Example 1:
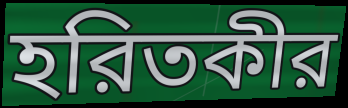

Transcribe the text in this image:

হরিতকীর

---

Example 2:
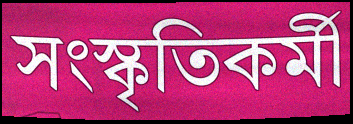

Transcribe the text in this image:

সংস্কৃতিকর্মী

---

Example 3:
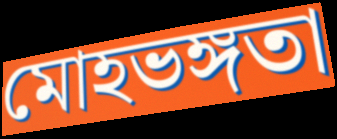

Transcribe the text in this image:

মোহভঙ্গতা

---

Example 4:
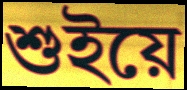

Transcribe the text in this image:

শুইয়ে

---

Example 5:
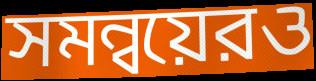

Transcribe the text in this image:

সমন্বয়েরও